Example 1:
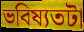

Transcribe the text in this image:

ভবিষ্যতটা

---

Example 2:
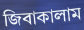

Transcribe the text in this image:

জিবাকালাম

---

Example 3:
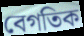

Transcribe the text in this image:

বেগতিক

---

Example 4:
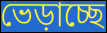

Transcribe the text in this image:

ভেড়াচ্ছে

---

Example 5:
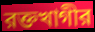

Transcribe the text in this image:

রক্তখাগীর